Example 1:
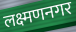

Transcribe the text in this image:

लक्ष्मणनगर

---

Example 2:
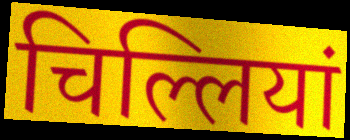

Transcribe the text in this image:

चिल्लियां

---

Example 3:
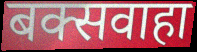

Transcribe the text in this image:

बक्सवाहा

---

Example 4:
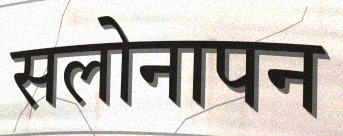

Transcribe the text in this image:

सलोनापन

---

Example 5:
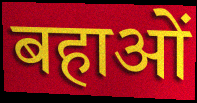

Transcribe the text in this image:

बहाओं